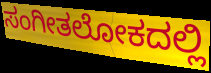
ಸಂಗೀತಲೋಕದಲ್ಲಿ